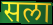
सला